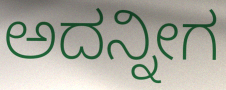
ಅದನ್ನೀಗ